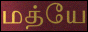
மத்யே